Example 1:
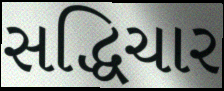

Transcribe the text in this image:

સદ્ધિચાર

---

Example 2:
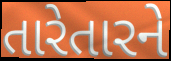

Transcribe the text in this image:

તારેતારને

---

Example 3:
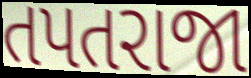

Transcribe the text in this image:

તપતરાજા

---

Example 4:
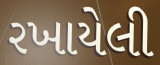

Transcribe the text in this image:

રખાયેલી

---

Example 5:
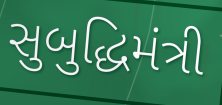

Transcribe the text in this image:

સુબુદ્ધિમંત્રી